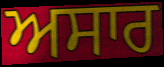
ਅਸਾਰ